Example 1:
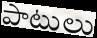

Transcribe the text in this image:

పాటులు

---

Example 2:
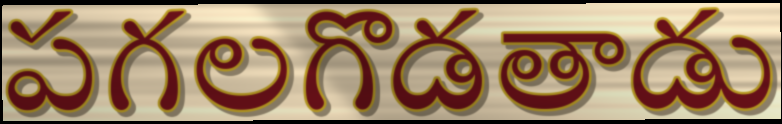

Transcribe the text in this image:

పగలగొడతాడు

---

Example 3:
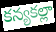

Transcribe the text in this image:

కన్యకల్లా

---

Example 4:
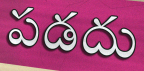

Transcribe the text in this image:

పడదు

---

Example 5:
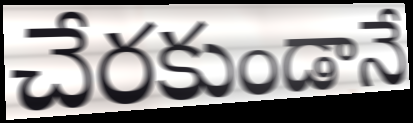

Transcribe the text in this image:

చేరకుండానే